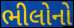
ભીલોનો